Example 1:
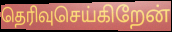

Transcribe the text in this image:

தெரிவுசெய்கிறேன்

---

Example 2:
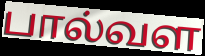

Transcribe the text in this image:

பால்வள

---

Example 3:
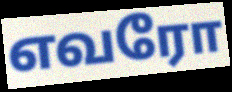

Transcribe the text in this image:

எவரோ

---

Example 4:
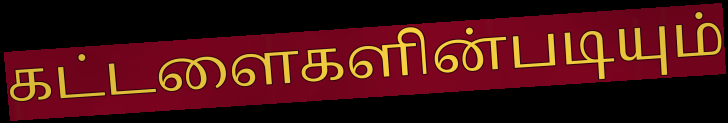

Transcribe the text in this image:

கட்டளைகளின்படியும்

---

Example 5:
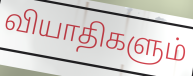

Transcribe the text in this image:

வியாதிகளும்